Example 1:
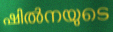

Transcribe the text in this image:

ഷിൽനയുടെ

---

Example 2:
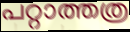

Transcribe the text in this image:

പറ്റാത്തത്ര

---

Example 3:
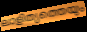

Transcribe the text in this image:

ലാളിത്യത്തെയും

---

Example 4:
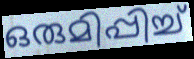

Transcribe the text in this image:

ഒരുമിപ്പിച്ച്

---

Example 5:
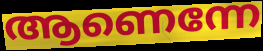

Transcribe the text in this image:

ആണെന്നേ